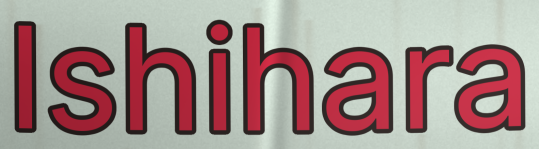
Ishihara